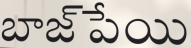
బాజ్‌పేయి